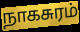
நாகசுரம்